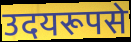
उदयरूपसे